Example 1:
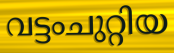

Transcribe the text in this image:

വട്ടംചുറ്റിയ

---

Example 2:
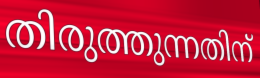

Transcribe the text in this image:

തിരുത്തുന്നതിന്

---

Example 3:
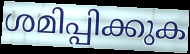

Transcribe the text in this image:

ശമിപ്പിക്കുക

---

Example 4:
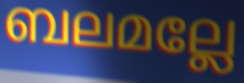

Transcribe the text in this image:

ബലമല്ലേ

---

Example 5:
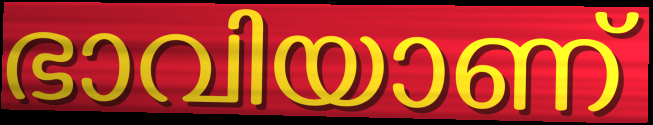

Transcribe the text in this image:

ഭാവിയാണ്